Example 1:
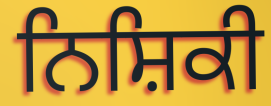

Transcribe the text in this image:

ਨਿਸ਼ਿਕੀ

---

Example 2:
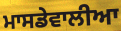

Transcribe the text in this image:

ਮਾਸਡੇਵਾਲੀਆ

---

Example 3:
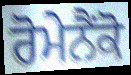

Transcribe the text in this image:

ਰੋਮੇਨੈਂਕੋ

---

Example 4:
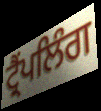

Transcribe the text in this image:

ਟ੍ਰੈਂਪਲਿੰਗ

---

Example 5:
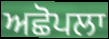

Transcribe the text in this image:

ਅਛੋਪਲਾ